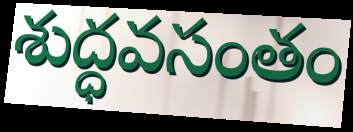
శుద్ధవసంతం